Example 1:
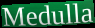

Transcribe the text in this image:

Medulla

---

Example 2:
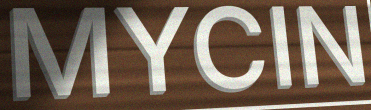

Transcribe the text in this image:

MYCIN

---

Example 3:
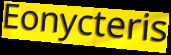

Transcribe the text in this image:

Eonycteris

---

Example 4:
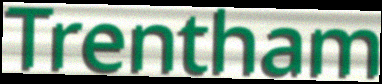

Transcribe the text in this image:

Trentham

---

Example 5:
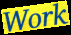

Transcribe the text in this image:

Work